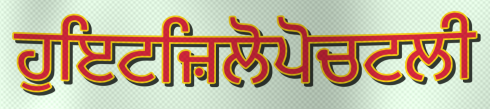
ਹੁਇਟਜ਼ਿਲੋਪੋਚਟਲੀ